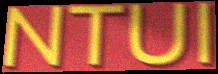
NTUI